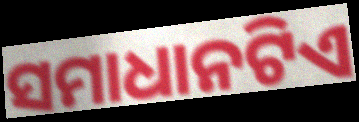
ସମାଧାନଟିଏ